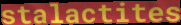
stalactites